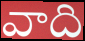
వాది